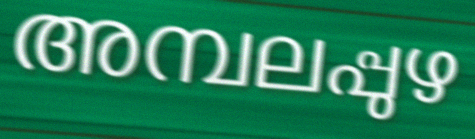
അമ്പലപ്പുഴ